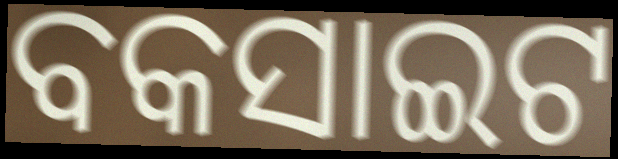
ବକସାଇଟ